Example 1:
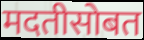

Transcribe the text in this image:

मदतीसोबत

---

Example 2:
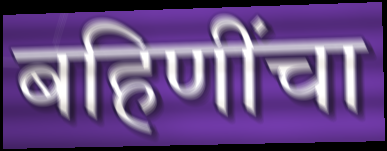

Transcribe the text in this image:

बहिणींचा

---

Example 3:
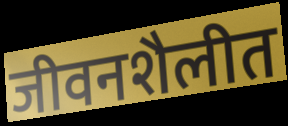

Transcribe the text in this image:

जीवनशैलीत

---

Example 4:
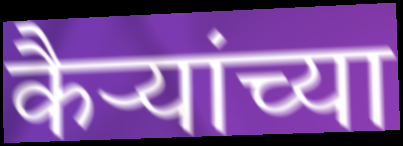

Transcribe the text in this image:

कैऱ्यांच्या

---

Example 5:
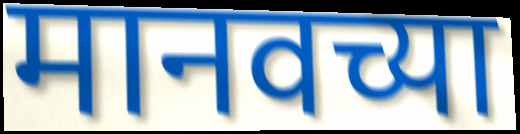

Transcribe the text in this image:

मानवच्या